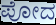
ಪೋದ